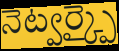
నెట్వర్క్పై